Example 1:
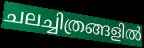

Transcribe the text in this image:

ചലച്ചിത്രങ്ങളിൽ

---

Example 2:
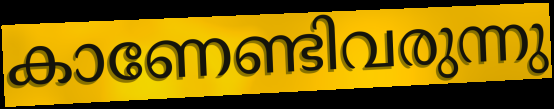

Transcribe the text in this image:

കാണേണ്ടിവരുന്നു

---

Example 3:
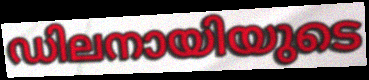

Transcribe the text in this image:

ഡിലനായിയുടെ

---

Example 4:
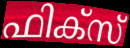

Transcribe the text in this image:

ഫിക്സ്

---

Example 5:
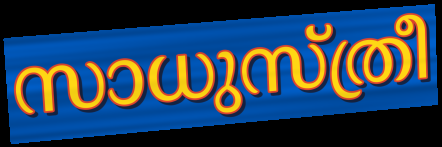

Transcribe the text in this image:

സാധുസ്ത്രീ